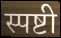
स्पष्टी